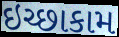
ઇચ્છાકામ